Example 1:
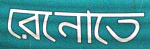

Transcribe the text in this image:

রেনোতে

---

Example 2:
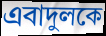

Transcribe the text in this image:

এবাদুলকে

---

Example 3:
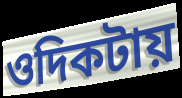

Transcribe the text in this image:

ওদিকটায়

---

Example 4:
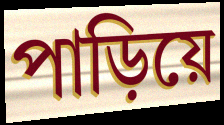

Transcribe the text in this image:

পাড়িয়ে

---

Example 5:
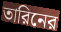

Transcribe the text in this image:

তারিনের